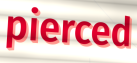
pierced